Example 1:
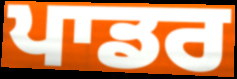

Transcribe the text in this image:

ਪਾਡਰ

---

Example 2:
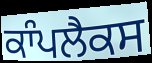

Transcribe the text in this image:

ਕਾੰਪਲੈਕਸ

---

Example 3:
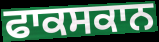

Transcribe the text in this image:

ਫਾਕਸਕਾਨ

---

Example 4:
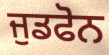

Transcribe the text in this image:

ਜੁਡਫੋਨ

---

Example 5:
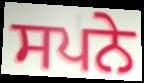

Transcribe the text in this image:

ਸਪਨੇ